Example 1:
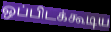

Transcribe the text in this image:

ஒப்பிடக்கூடிய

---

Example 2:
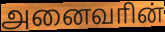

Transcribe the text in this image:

அனைவரின்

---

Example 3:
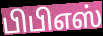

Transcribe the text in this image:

பிபிஎஸ்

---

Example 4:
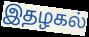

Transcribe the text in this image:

இதழகல்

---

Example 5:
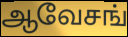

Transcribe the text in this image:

ஆவேசங்